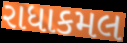
રાધાકમલ